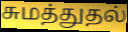
சுமத்துதல்